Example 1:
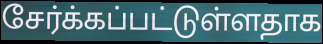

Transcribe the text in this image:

சேர்க்கப்பட்டுள்ளதாக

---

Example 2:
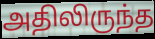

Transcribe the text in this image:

அதிலிருந்த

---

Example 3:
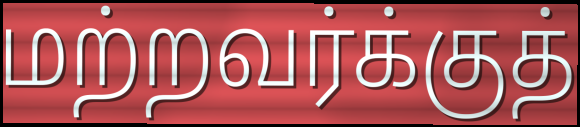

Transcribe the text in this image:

மற்றவர்க்குத்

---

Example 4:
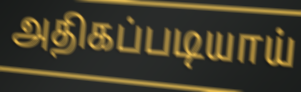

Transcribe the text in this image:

அதிகப்படியாய்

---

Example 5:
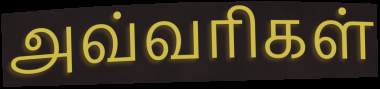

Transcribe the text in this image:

அவ்வரிகள்